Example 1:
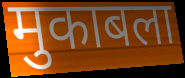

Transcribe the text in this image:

मुकाबला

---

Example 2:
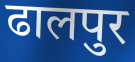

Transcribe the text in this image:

ढालपुर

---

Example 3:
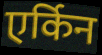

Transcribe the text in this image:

एर्किन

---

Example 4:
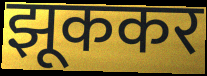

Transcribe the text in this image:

झूककर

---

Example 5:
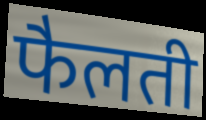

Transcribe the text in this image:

फैलती